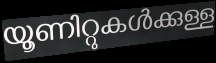
യൂണിറ്റുകൾക്കുള്ള